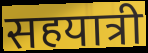
सहयात्री